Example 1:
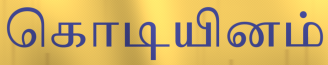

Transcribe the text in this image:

கொடியினம்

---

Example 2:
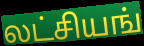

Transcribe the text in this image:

லட்சியங்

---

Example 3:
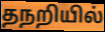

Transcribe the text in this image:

தநறியில்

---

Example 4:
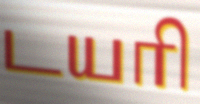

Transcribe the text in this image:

டயரி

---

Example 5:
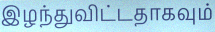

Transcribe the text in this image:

இழந்துவிட்டதாகவும்